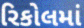
રિકોલમાં